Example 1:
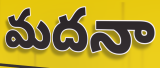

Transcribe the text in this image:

మదనా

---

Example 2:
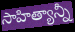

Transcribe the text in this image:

సాహిత్యాన్నీ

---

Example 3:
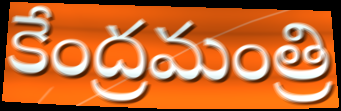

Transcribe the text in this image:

కేంద్రమంత్రి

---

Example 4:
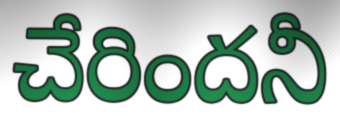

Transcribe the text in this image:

చేరిందనీ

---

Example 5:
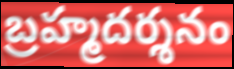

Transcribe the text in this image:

బ్రహ్మదర్శనం